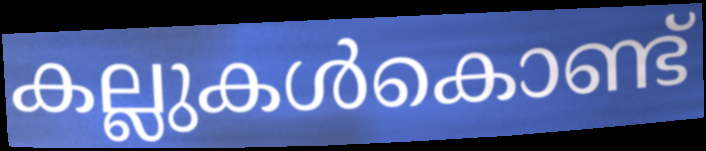
കല്ലുകൾകൊണ്ട്